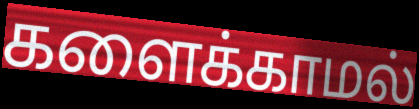
களைக்காமல்